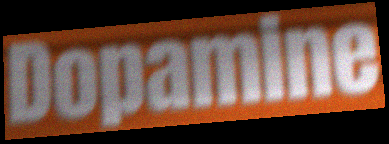
Dopamine